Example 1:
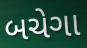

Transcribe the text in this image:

બચેગા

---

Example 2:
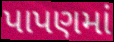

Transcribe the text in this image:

પાપણમાં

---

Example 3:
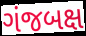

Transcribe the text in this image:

ગંજબક્ષ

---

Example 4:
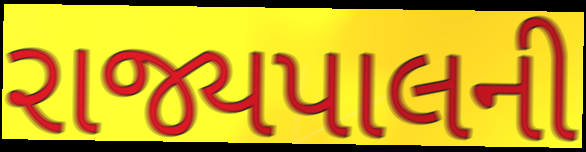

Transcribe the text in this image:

રાજ્યપાલની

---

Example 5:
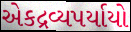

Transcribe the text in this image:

એકદ્રવ્યપર્યાયો